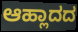
ಆಹ್ಲಾದದ